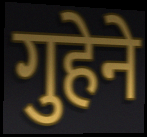
गुहेने